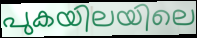
പുകയിലയിലെ